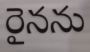
రైనను